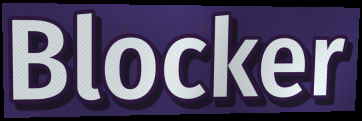
Blocker